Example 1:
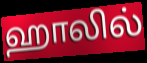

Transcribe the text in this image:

ஹாலில்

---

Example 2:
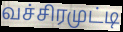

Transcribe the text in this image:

வச்சிரமுட்டி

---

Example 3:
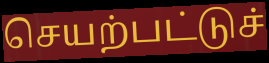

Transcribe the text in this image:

செயற்பட்டுச்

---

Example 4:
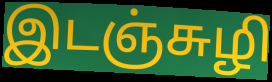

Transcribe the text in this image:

இடஞ்சுழி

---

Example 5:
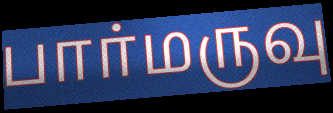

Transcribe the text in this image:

பார்மருவு